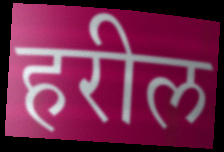
हरील